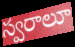
స్వరాలూ